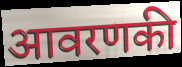
आवरणकी